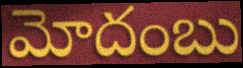
మోదంబు